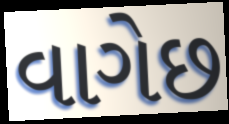
વાગેછ